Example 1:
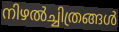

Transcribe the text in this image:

നിഴൽച്ചിത്രങ്ങൾ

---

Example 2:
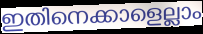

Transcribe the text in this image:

ഇതിനെക്കാളെല്ലാം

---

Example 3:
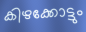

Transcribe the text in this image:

കിഴക്കോട്ടും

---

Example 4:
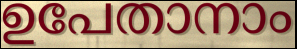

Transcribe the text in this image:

ഉപേതാനാം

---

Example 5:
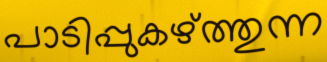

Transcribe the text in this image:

പാടിപ്പുകഴ്ത്തുന്ന